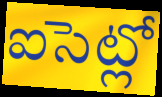
ఐసెట్లో